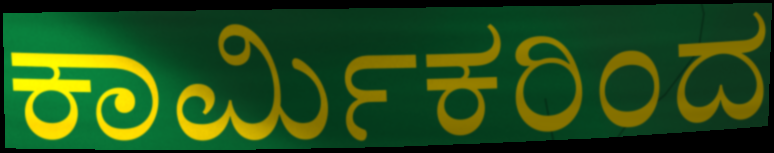
ಕಾರ್ಮಿಕರಿಂದ